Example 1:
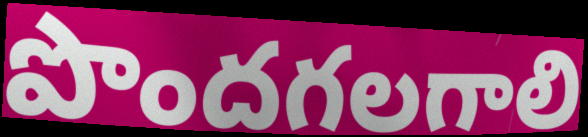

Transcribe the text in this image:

పొందగలగాలి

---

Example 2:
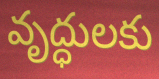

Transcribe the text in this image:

వృద్ధులకు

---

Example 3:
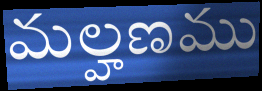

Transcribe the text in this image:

మల్హణము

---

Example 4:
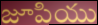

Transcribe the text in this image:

జూపియు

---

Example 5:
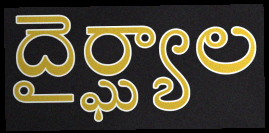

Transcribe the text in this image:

దైర్ఘ్యాల